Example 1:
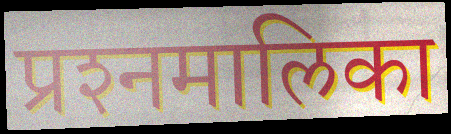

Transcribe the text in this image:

प्रश्नमालिका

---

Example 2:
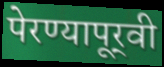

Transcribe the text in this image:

पेरण्यापूर्वी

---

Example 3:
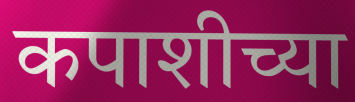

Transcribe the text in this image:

कपाशीच्या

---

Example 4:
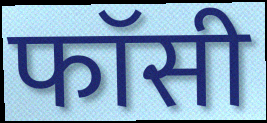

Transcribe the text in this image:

फॉसी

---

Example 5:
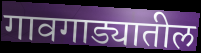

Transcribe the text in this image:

गावगाड्यातील